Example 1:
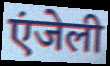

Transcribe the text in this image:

एंजेली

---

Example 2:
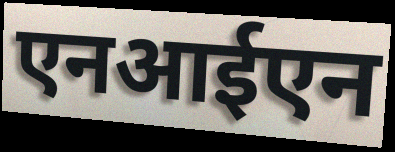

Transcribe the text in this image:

एनआईएन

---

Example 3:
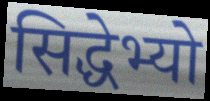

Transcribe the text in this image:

सिद्धेभ्यो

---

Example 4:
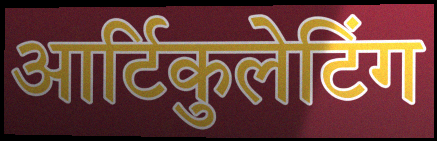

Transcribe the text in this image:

आर्टिकुलेटिंग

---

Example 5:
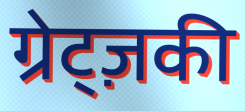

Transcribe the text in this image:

ग्रेट्ज़की